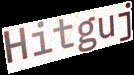
Hitguj